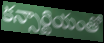
కన్సార్టియంతో